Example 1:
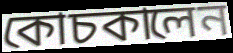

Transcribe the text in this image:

কোচকালেন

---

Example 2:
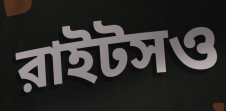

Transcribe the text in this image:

রাইটসও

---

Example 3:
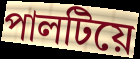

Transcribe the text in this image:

পালটিয়ে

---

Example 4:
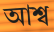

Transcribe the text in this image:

আশ্ব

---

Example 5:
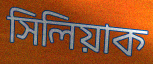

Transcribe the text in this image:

সিলিয়াক